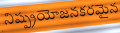
నిష్ప్రయోజనకరమైన